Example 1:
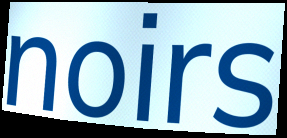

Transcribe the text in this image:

noirs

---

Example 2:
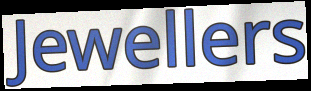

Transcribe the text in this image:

Jewellers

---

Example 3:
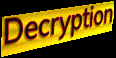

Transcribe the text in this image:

Decryption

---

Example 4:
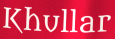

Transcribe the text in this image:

Khullar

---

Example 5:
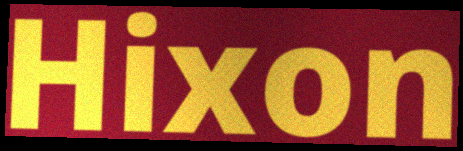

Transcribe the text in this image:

Hixon